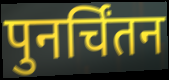
पुनर्चिंतन